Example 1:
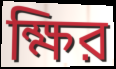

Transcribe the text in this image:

ক্ষির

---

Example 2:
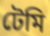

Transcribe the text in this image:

টেমি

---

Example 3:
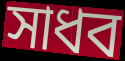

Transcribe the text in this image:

সাধব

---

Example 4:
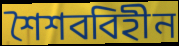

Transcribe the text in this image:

শৈশববিহীন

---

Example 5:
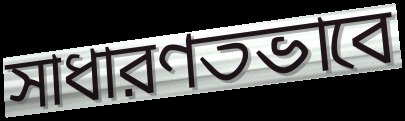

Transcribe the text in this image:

সাধারণতভাবে